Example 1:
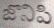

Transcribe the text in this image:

జొనిపి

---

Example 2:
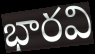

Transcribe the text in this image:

భారవి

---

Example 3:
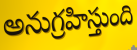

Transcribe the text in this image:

అనుగ్రహిస్తుంది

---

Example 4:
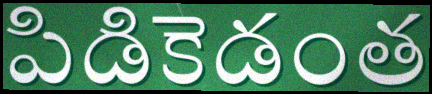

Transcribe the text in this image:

పిడికెడంత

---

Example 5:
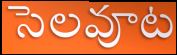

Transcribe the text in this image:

సెలవూట